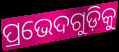
ପ୍ରଭେଦଗୁଡ଼ିକୁ